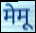
मेमू